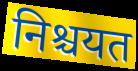
निश्चयत